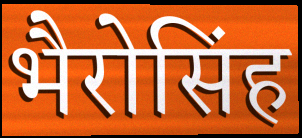
भैरोसिंह